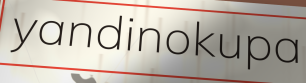
yandinokupa